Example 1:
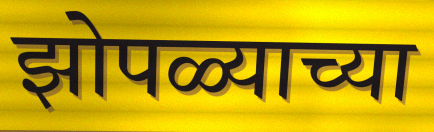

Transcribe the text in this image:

झोपळ्याच्या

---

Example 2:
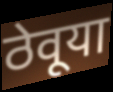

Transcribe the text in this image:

ठेवूया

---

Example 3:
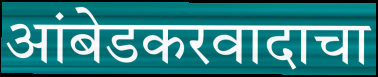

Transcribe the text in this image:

आंबेडकरवादाचा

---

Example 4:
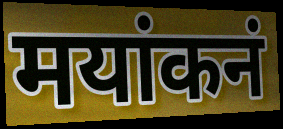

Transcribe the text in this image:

मयांकनं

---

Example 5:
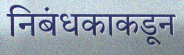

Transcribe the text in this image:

निबंधकाकडून